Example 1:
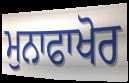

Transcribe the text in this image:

ਮੁਨਾਫਾਖੋਰ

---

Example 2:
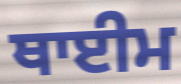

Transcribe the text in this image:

ਥਾਈਮ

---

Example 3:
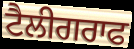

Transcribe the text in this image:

ਟੈਲੀਗਰਾਫ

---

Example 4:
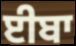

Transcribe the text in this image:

ਈਬਾ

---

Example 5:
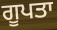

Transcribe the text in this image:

ਗੂਪਤਾ